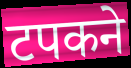
टपकने